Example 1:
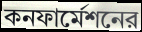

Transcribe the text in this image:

কনফার্মেশনের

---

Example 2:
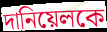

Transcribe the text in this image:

দানিয়েলকে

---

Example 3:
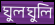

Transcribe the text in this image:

ঘুলঘুলি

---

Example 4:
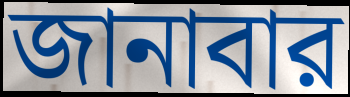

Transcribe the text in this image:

জানাবার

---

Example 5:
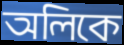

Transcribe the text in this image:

অলিকে